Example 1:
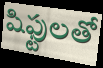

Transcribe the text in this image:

షిఫ్టులతో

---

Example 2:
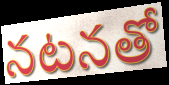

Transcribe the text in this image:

నటనతో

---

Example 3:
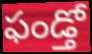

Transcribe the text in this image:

ఫండ్తో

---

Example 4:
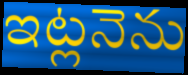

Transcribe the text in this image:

ఇట్లనెను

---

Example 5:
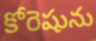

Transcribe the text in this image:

కోరెషును